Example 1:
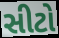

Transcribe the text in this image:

સીટો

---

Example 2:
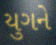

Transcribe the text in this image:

યુગને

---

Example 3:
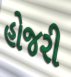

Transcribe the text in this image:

હોજરી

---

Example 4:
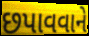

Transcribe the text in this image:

છપાવવાને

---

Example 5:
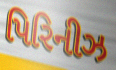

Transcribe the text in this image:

પિરિનીઝ